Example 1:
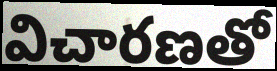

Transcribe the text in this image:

విచారణతో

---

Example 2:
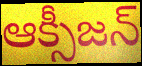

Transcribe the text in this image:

ఆక్సీజన్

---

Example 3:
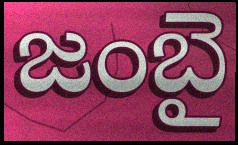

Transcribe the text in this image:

జంబై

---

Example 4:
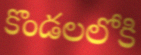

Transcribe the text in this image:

కొండలలోకి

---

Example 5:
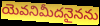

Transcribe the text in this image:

యెవనిమీదనైనను